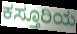
ಕಸ್ತೂರಿಯ